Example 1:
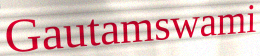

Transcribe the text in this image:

Gautamswami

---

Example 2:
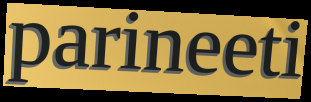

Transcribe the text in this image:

parineeti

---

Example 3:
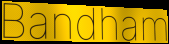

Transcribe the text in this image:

Bandham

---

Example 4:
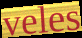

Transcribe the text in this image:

veles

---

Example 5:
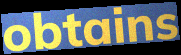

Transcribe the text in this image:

obtains